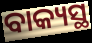
ବାକ୍ୟସ୍ଥ